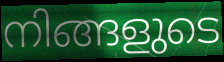
നിങ്ങളുടെ